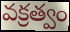
వక్రత్వం